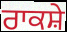
ਰਾਕਸ਼ੇ